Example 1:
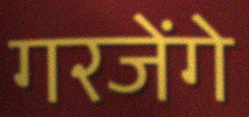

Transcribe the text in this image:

गरजेंगे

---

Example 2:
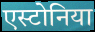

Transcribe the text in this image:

एस्‍टोनिया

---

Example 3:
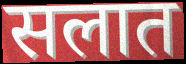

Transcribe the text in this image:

सलात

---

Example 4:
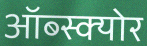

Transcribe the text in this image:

ऑब्स्क्योर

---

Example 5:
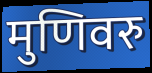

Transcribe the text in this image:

मुणिवरु